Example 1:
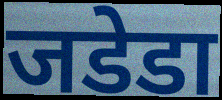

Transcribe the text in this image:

जडेडा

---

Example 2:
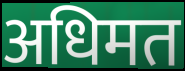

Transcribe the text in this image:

अधिमत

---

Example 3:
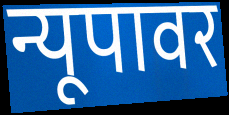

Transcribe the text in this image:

न्यूपावर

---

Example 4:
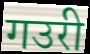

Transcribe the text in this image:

गउरी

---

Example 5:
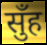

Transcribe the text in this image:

सुँह